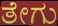
ತೇಗು